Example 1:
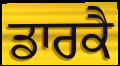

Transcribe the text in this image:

ਡਾਰਕੈ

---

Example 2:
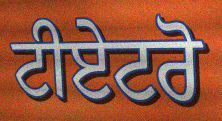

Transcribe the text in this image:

ਟੀਏਟਰੋ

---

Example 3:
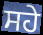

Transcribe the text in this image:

ਸਹੇ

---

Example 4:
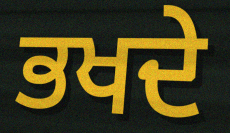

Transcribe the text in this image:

ਭਖਦੇ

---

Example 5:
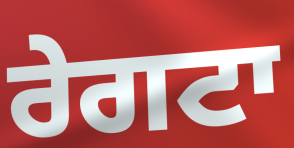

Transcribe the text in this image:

ਰੇਗਟਾ